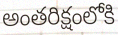
అంతరిక్షంలోకి